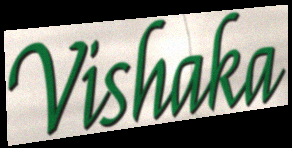
Vishaka